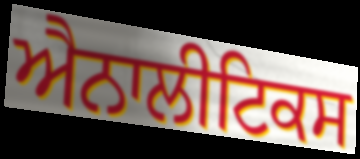
ਐਨਾਲੀਟਿਕਸ